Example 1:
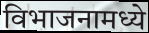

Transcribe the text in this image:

विभाजनामध्ये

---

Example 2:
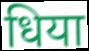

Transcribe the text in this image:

धिया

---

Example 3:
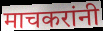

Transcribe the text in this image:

माचकरांनी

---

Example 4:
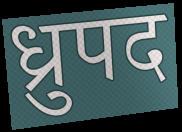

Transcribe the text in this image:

ध्रुपद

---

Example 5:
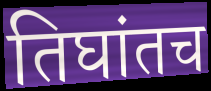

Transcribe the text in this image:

तिघांतच